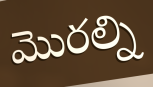
మొరల్ని